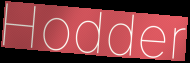
Hodder